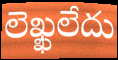
లెఖ్ఖలేదు